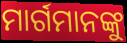
ମାର୍ଗମାନଙ୍କୁ